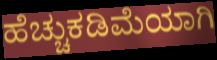
ಹೆಚ್ಚುಕಡಿಮೆಯಾಗಿ